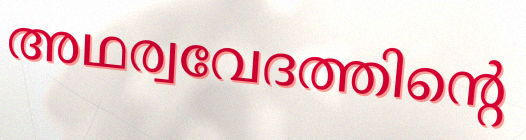
അഥര്വവേദത്തിന്റെ